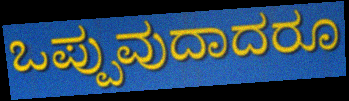
ಒಪ್ಪುವುದಾದರೂ